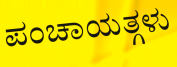
ಪಂಚಾಯತ್ಗಳು